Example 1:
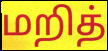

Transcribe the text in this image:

மறித்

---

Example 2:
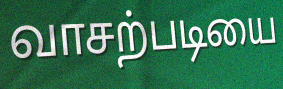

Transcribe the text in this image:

வாசற்படியை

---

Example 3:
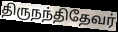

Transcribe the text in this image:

திருநந்திதேவர்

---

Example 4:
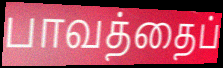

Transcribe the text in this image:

பாவத்தைப்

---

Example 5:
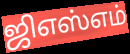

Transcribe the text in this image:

ஜிஎஸ்எம்